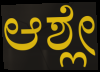
ಆಶ್ಲೇ